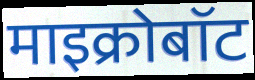
माइक्रोबॉट